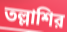
তল্লাশির